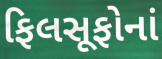
ફિલસૂફોનાં